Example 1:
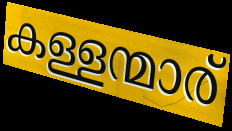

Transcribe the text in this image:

കള്ളന്മാര്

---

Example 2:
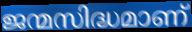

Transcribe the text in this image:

ജന്മസിദ്ധമാണ്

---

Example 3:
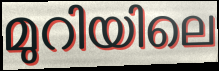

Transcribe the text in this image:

മുറിയിലെ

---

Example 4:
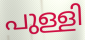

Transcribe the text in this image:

പുള്ളി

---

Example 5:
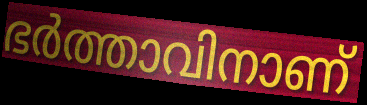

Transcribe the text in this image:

ഭർത്താവിനാണ്